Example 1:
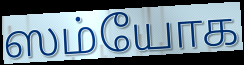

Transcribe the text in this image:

ஸம்யோக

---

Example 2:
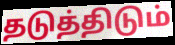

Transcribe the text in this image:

தடுத்திடும்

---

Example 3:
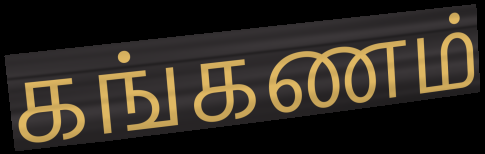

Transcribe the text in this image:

கங்கணம்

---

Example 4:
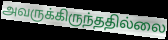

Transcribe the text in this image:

அவருக்கிருந்ததில்லை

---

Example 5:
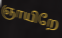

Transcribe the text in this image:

ஞாயிறே